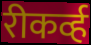
रीकर्व्ह